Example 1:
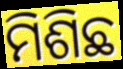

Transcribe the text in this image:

ମିଶିଛ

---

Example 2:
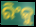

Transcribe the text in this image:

ରିଂକୁ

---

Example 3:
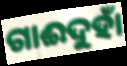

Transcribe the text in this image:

ଗାଈଦୁହାଁ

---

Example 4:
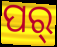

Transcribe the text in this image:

ପର୍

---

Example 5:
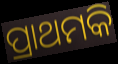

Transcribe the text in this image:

ପ୍ରାଥମକି